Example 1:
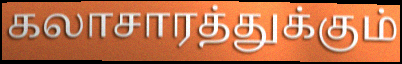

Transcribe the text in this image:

கலாசாரத்துக்கும்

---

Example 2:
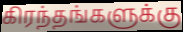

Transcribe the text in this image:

கிரந்தங்களுக்கு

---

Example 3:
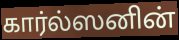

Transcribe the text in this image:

கார்ல்ஸனின்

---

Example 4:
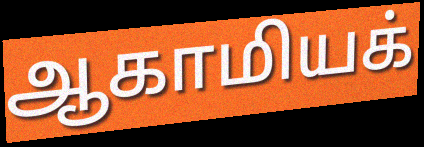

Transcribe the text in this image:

ஆகாமியக்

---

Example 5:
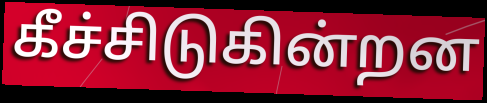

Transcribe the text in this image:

கீச்சிடுகின்றன